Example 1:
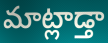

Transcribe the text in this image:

మాట్లాడ్తా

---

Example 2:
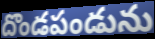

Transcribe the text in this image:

దొండపండును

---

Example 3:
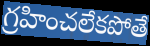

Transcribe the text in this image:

గ్రహించలేకపోతే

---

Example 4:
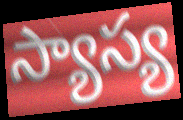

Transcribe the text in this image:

స్యాస్య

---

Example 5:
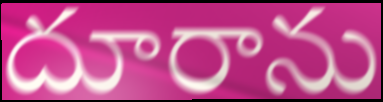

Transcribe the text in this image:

దూరాను